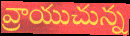
వ్రాయుచున్న